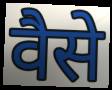
वैसे